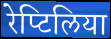
रेप्टिलिया